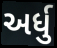
અર્ધુ